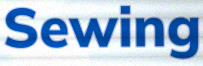
Sewing